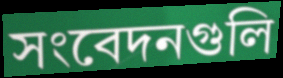
সংবেদনগুলি